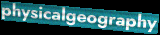
physicalgeography